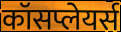
कॉसप्लेयर्स